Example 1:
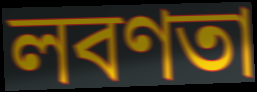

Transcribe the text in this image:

লবণতা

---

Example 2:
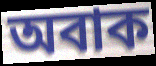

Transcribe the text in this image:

অবাক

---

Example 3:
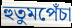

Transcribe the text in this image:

হুতুমপেঁচা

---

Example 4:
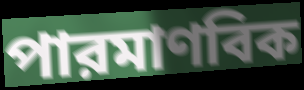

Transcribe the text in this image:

পারমাণবিক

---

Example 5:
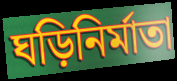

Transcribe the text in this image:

ঘড়িনির্মাতা